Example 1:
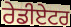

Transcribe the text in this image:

ਰੇਡੀਏਟਰ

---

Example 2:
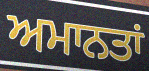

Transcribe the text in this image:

ਅਮਾਨਤਾਂ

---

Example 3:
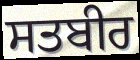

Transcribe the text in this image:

ਸਤਬੀਰ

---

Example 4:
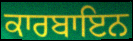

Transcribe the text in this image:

ਕਾਰਬਾਇਨ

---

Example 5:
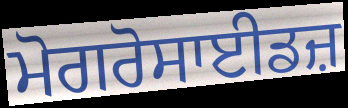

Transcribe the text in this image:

ਮੋਗਰੋਸਾਈਡਜ਼